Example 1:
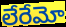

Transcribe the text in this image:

లేరేమో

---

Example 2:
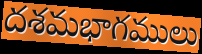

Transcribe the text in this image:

దశమభాగములు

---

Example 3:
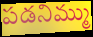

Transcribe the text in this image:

పడనిమ్ము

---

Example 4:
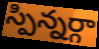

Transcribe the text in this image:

స్పిన్నర్గా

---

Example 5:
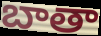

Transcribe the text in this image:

బాతా